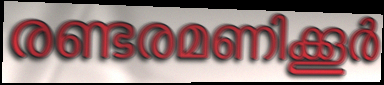
രണ്ടരമണിക്കൂർ